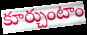
కూర్చుంటాం